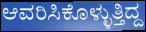
ಆವರಿಸಿಕೊಳ್ಳುತ್ತಿದ್ದ